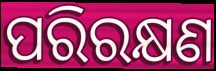
ପରିରକ୍ଷଣ